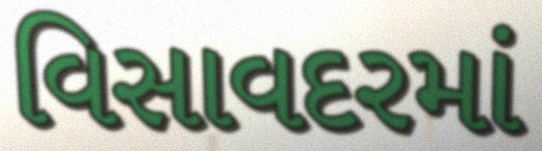
વિસાવદરમાં